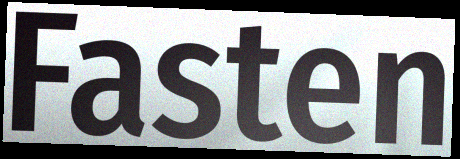
Fasten